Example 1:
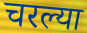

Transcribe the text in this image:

चरल्या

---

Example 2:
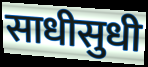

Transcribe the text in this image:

साधीसुधी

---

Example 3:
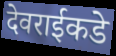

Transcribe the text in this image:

देवराईकडे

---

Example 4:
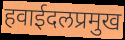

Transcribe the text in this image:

हवाईदलप्रमुख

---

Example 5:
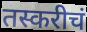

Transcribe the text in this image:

तस्करीचं